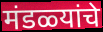
मंडळ्यांचे